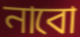
নাবো